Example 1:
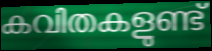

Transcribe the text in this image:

കവിതകളുണ്ട്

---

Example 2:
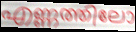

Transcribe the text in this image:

എണ്ണത്തിലോ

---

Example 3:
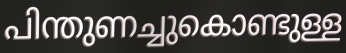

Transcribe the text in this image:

പിന്തുണച്ചുകൊണ്ടുള്ള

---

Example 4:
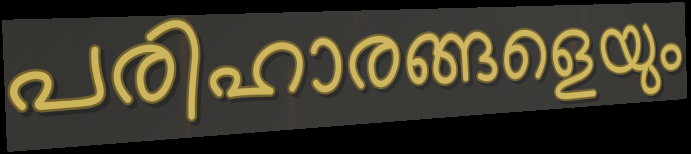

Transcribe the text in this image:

പരിഹാരങ്ങളെയും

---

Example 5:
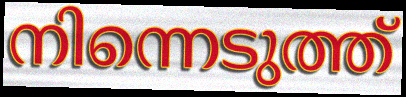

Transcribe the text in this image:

നിന്നെടുത്ത്